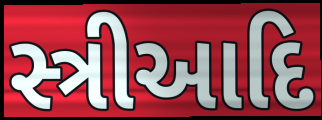
સ્ત્રીઆદિ